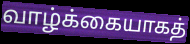
வாழ்க்கையாகத்